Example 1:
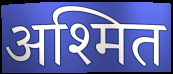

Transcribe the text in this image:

अश्मित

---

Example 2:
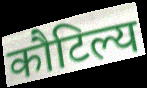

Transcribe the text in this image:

कौटिल्य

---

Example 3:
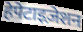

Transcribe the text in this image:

हेपेटाइज़ेशन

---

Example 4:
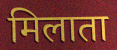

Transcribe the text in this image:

मिलाता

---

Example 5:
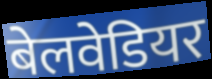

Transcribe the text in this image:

बेलवेडियर